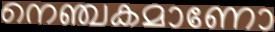
നെഞ്ചകമാണോ